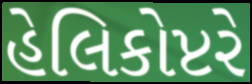
હેલિકોપ્ટરે